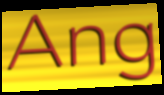
Ang